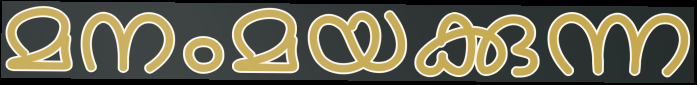
മനംമയക്കുന്ന